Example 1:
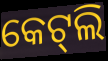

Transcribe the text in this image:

କେଟ୍‌ଲି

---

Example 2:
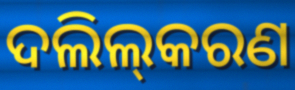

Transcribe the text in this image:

ଦଲିଲ୍‌କରଣ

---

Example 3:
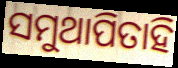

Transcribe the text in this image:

ସମୁଥାପିତାହି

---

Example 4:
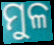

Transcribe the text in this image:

ମୁଳ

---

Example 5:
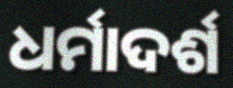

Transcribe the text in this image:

ଧର୍ମାଦର୍ଶ